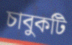
চাবুকটি